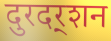
दुरदर्शन